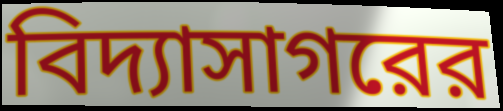
বিদ্যাসাগরের